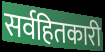
सर्वहितकारी